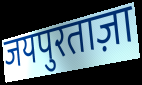
जयपुरताज़ा